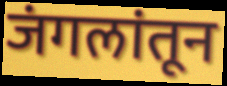
जंगलांतून